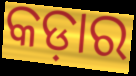
କଡ଼ାର